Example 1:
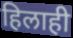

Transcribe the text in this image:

हिलाही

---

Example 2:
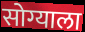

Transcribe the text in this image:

सोग्याला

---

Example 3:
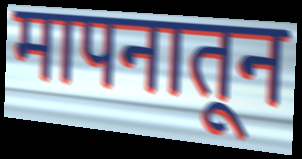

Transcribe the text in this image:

मापनातून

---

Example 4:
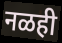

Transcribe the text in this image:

नळही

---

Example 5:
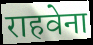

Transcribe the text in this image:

राहवेना